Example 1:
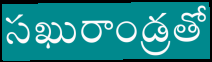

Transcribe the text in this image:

సఖురాండ్రతో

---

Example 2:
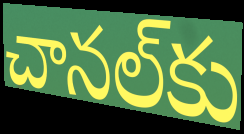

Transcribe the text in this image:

చానల్‌కు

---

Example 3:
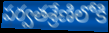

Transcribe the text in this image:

పర్వతశ్రేణిలోకి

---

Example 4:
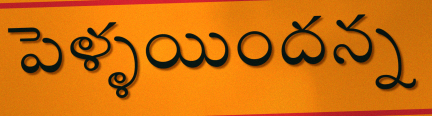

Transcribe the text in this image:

పెళ్ళయిందన్న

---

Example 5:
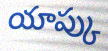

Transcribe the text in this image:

యాప్కు